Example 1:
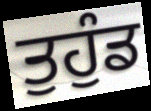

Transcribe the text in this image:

ਤੁਹੁੰਡ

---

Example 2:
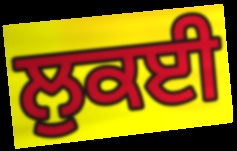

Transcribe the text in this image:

ਲੁਕਈ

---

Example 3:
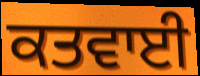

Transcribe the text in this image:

ਕਤਵਾਈ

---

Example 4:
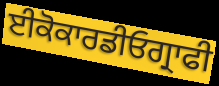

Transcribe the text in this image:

ਈਕੋਕਾਰਡੀਓਗ੍ਰਾਫੀ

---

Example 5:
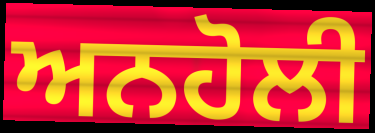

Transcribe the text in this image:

ਅਨਹੋਲੀ